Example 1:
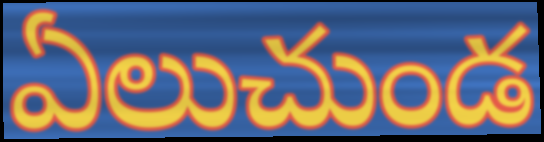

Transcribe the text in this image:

ఏలుచుండ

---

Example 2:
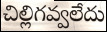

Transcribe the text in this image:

చిల్లిగవ్వలేదు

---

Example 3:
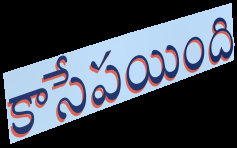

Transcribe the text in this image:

కాసేపయింది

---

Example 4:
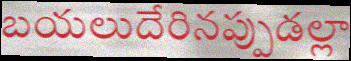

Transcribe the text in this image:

బయలుదేరినప్పుడల్లా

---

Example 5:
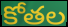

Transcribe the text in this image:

కోతల